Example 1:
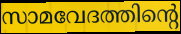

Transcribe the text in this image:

സാമവേദത്തിന്റെ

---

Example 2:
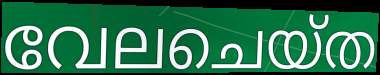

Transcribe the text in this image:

വേലചെയ്ത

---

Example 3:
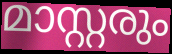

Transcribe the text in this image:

മാസ്റ്റരും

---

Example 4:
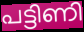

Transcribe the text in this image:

പട്ടിണി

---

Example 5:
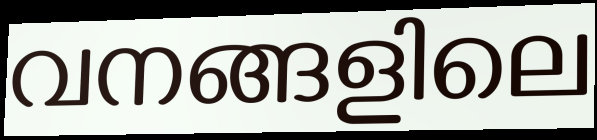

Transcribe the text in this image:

വനങ്ങളിലെ